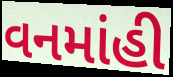
વનમાંહી